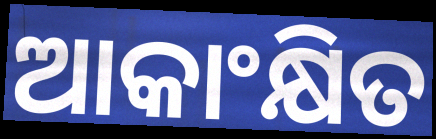
ଆକାଂକ୍ଷିତ